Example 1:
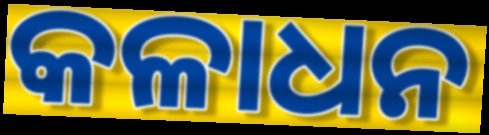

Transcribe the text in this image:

କଳାଧନ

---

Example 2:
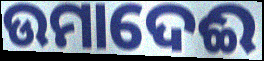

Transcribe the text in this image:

ଉମାଦେଈ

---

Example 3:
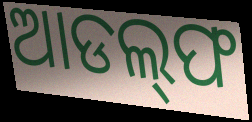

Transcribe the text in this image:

ଆଡଲ୍‌ଫ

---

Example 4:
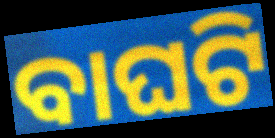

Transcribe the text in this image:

ବାଘଟି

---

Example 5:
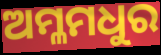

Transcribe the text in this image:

ଅମ୍ଳମଧୁର